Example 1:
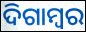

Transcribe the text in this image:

ଦିଗାମ୍ଵର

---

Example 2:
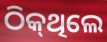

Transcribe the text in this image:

ଠିକ୍‌ଥିଲେ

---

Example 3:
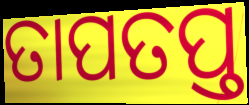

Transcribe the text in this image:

ତାପତପ୍ତ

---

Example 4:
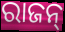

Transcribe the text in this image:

ରାଜନ୍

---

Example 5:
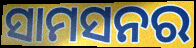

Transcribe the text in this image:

ସାମସନର